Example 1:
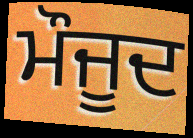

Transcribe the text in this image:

ਮੌਜੂਦ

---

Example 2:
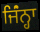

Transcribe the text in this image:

ਜਿੰਂਨ੍ਹਾ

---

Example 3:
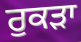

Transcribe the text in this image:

ਰੁਕੜਾ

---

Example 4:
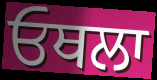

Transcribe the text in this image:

ਓਥਲਾ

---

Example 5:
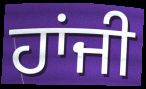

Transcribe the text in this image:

ਹਾਂਜੀ